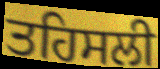
ਤਹਿਸਲੀ